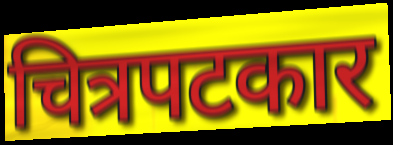
चित्रपटकार